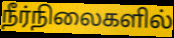
நீர்நிலைகளில்